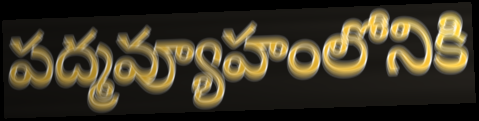
పద్మవ్యూహంలోనికి